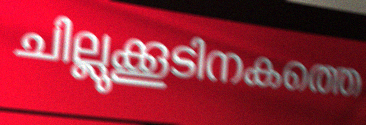
ചില്ലുക്കൂടിനകത്തെ